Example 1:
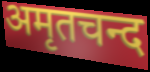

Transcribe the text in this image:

अमृतचन्द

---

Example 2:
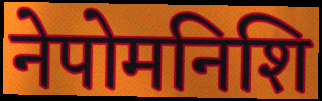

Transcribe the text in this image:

नेपोमनिशि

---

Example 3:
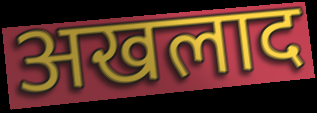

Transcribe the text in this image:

अखलाद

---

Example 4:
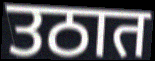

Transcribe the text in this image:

उठात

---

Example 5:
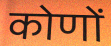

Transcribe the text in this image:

कोणों